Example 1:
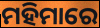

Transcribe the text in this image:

ମହିମାରେ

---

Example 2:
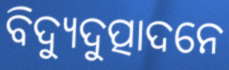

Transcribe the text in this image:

ବିଦ୍ଯୁଦୁତ୍ପାଦନେ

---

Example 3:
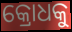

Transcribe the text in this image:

କ୍ରୋଧକୁ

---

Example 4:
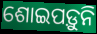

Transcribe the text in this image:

ଶୋଇପଡ଼ୁନି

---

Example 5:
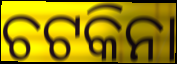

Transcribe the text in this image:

ଚଟକିନା